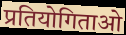
प्रतियोगिताओ